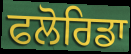
ਫਲੋਰਿਡਾ